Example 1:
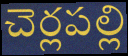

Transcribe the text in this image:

చెర్లపల్లి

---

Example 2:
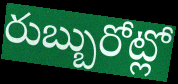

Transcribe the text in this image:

రుబ్బురోట్లో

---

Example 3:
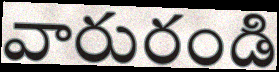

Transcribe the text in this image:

వారురండి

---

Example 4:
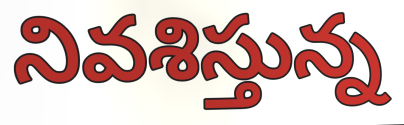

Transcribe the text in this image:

నివశిస్తున్న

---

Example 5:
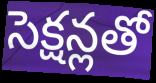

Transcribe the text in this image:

సెక్షన్లతో